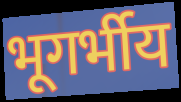
भूगर्भीय